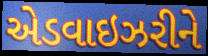
એડવાઇઝરીને